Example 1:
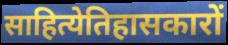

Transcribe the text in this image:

साहित्येतिहासकारों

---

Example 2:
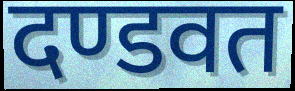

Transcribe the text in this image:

दण्‍डवत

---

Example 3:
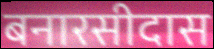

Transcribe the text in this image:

बनारसीदास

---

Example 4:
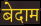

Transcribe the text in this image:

बेदाम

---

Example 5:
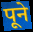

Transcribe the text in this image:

पूने